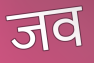
जव